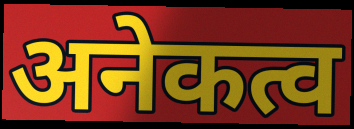
अनेकत्व